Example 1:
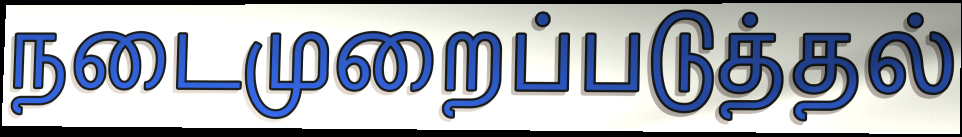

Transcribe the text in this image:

நடைமுறைப்படுத்தல்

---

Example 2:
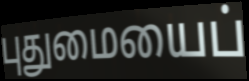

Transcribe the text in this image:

புதுமையைப்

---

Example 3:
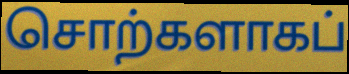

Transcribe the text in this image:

சொற்களாகப்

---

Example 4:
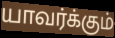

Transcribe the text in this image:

யாவர்க்கும்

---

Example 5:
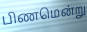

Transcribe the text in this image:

பிணமென்று